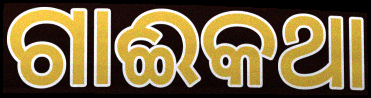
ଗାଈକଥା